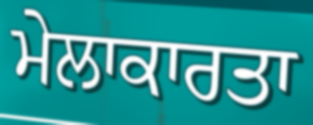
ਮੇਲਾਕਾਰਤਾ